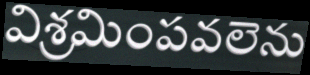
విశ్రమింపవలెను